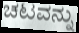
ಚಟವನ್ನು